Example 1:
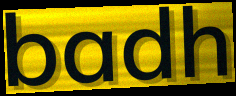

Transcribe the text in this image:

badh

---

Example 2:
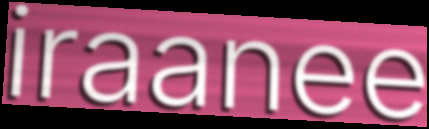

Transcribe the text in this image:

iraanee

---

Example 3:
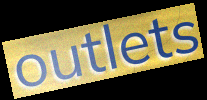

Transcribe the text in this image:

outlets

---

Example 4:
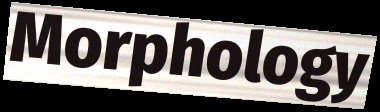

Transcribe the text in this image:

Morphology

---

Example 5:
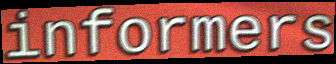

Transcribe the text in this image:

informers